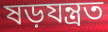
ষড়যন্ত্ৰত